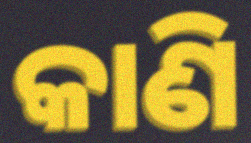
କାଣି